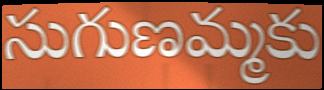
సుగుణమ్మకు